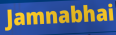
Jamnabhai